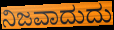
ನಿಜವಾದುದು